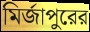
মির্জাপুরের